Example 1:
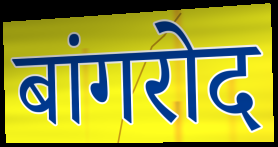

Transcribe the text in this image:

बांगरोद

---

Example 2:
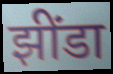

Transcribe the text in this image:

झींडा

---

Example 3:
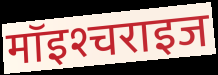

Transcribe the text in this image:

मॉइश्चराइज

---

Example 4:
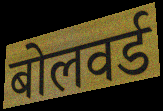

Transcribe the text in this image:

बोलवर्ड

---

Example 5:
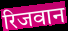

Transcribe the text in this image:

रिजवान